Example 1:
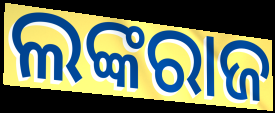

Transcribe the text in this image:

ଲଙ୍କରାଜ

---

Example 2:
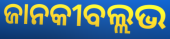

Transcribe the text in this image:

ଜାନକୀବଲ୍ଲଭ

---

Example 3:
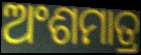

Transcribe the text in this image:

ଅଂଶମାତ୍ର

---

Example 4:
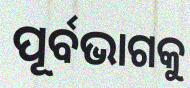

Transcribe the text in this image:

ପୂର୍ବଭାଗକୁ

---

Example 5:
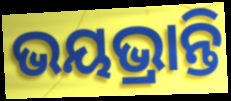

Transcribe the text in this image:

ଭୟଭ୍ରାନ୍ତି